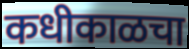
कधीकाळचा